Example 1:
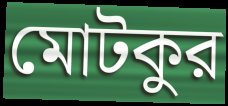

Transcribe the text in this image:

মোটকুর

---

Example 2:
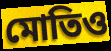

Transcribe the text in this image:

মোতিও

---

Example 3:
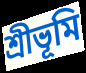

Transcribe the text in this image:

শ্রীভূমি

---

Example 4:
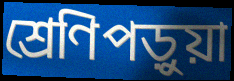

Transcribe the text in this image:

শ্রেণিপড়ুয়া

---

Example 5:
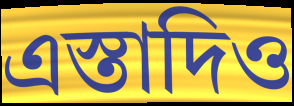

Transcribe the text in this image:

এস্তাদিও